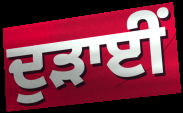
ਦੁੜਾਈਂ